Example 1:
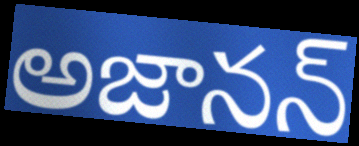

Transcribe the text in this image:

అజానన్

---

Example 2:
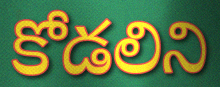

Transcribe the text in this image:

కోడలిని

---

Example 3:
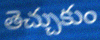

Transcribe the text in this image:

తెచ్చుకుం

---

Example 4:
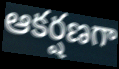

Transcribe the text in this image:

ఆకర్షణగా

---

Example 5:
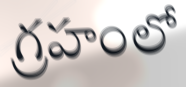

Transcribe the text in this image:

గ్రహంలో